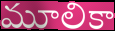
మూలికా